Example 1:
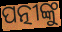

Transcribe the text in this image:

ପତ୍ନୀଙ୍କୁ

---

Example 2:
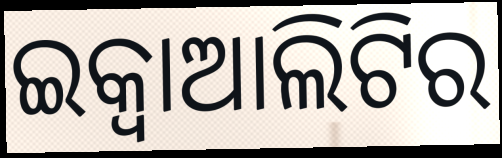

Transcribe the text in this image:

ଇକ୍ୱାଆଲିଟିର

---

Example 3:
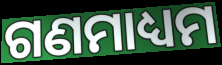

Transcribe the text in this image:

ଗଣମାଧ୍ୟମ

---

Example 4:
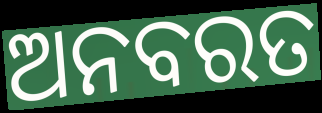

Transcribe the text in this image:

ଅନବରତ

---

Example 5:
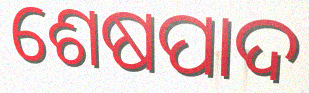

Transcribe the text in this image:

ଶେଷପାଦ